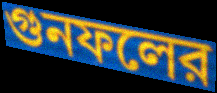
গুনফলের